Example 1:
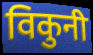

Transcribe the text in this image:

विकुनी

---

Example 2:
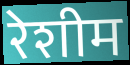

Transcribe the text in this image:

रेशीम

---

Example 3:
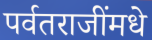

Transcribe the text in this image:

पर्वतराजींमधे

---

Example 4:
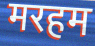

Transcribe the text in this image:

मरहम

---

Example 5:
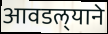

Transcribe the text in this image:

आवडल्याने